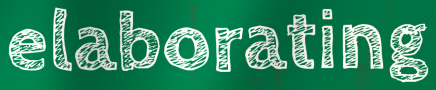
elaborating